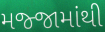
મજ્જામાંથી